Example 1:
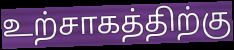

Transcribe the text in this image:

உற்சாகத்திற்கு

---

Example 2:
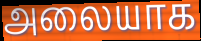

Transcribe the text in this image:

அலையாக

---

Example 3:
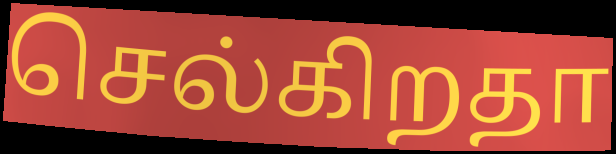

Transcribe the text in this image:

செல்கிறதா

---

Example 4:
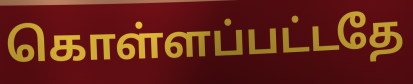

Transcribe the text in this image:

கொள்ளப்பட்டதே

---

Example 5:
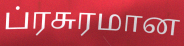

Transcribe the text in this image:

ப்ரசுரமான